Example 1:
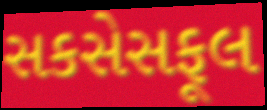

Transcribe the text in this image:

સકસેસફૂલ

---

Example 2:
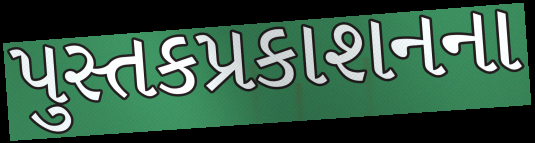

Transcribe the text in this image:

પુસ્તકપ્રકાશનના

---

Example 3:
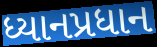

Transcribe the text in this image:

ધ્યાનપ્રધાન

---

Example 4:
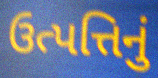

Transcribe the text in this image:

ઉત્પત્તિનું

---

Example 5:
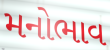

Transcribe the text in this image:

મનોભાવ